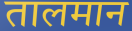
तालमान